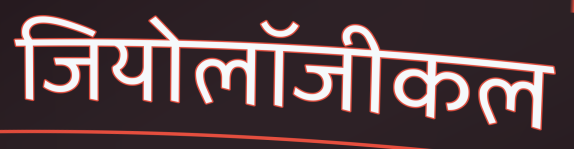
जियोलॉजीकल